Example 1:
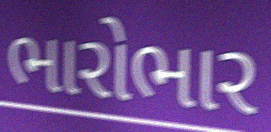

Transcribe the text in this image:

ભારોભાર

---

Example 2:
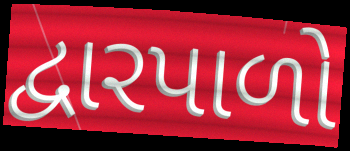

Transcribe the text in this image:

દ્વારપાળો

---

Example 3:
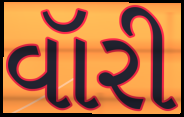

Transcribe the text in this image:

વૉરી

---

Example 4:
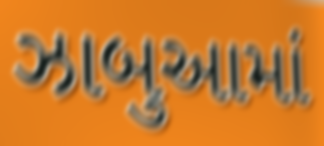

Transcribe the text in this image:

ઝાબુઆમાં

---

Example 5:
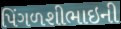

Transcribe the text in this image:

પિંગળશીભાઇની